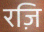
रज़ि